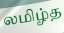
லமிழ்த